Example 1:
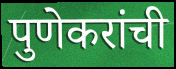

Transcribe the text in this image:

पुणेकरांची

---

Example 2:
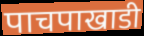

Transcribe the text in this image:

पाचपाखाडी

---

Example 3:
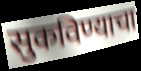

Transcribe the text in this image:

सुकविण्याचा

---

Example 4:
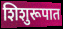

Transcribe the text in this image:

शिशुरूपात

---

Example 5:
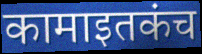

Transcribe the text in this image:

कामाइतकंच